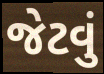
જેટવું